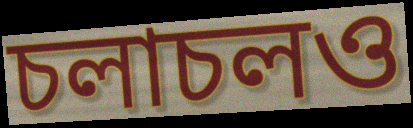
চলাচলও